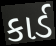
કાર્ડ